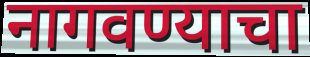
नागवण्याचा